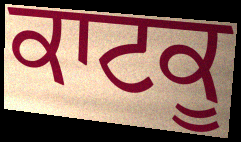
ਕਾਟਕੂ